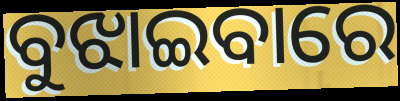
ବୁଝାଇବାରେ